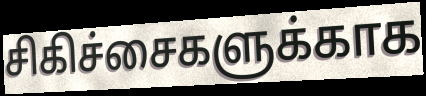
சிகிச்சைகளுக்காக